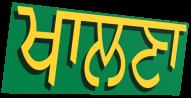
ਖਾਲਣਾ